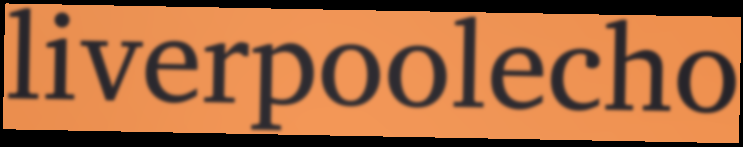
liverpoolecho